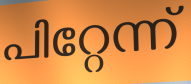
പിറ്റേന്ന്